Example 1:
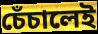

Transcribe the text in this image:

চেঁচালেই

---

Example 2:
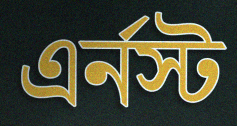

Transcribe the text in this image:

এর্নস্ট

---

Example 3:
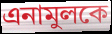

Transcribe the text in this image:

এনামুলকে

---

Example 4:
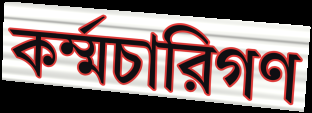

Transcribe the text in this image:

কর্ম্মচারিগণ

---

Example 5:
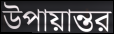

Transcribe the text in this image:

উপায়ান্তর